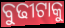
ବୁଢୀଟାକୁ